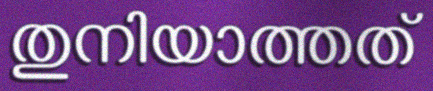
തുനിയാത്തത്